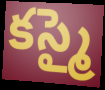
కస్మై